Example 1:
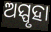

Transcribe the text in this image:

ଅସ୍ପୃହା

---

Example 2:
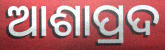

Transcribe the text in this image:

ଆଶାପ୍ରଦ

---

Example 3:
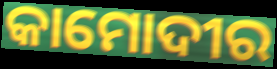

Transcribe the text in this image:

କାମୋଦୀର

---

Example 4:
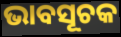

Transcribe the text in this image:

ଭାବସୂଚକ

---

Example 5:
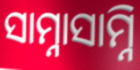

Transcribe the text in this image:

ସାମ୍ନାସାମ୍ନି